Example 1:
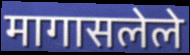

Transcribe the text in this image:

मागासलेले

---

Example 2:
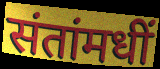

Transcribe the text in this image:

संतांमधीं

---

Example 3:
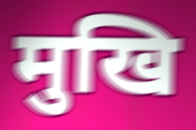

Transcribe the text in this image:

मुखि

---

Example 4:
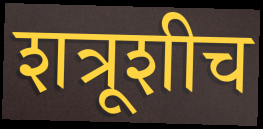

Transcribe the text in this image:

शत्रूशीच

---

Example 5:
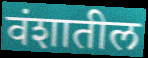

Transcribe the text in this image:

वंशातील